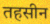
तहसीन